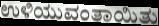
ಉಳಿಯುವಂತಾಯಿತು